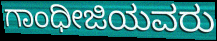
ಗಾಂಧೀಜಿಯವರು